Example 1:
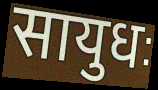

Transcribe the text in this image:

सायुधः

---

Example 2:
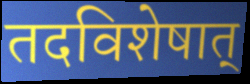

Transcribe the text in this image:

तदविशेषात्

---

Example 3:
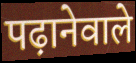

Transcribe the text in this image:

पढ़ानेवाले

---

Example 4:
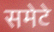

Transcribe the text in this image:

समेटे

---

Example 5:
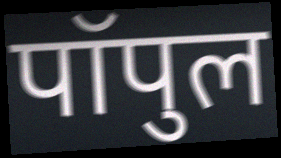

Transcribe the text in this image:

पॉपुल